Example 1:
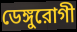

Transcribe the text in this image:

ডেঙ্গুরোগী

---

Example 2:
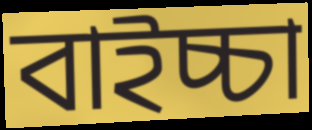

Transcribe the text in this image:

বাইচ্চা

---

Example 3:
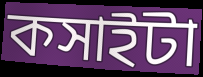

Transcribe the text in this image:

কসাইটা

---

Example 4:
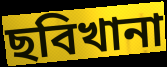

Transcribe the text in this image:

ছবিখানা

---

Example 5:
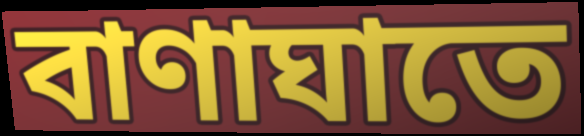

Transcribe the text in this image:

বাণাঘাতে